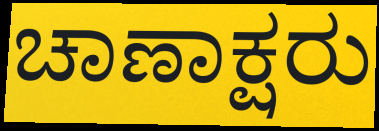
ಚಾಣಾಕ್ಷರು